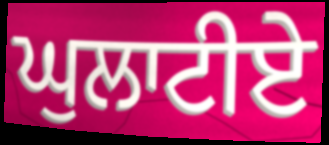
ਘੁਲਾਟੀਏ